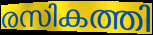
രസികത്തി